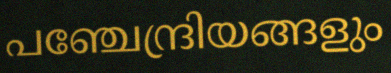
പഞ്ചേന്ദ്രിയങ്ങളും